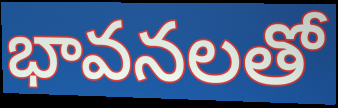
భావనలతో